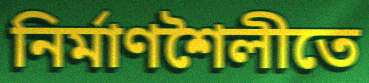
নির্মাণশৈলীতে